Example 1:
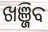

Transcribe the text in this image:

ଖଞ୍ଜିବ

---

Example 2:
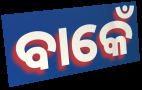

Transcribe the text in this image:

ବାକେଁ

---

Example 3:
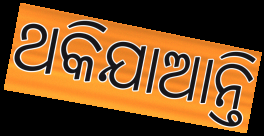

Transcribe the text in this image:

ଥକିଯାଆନ୍ତି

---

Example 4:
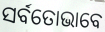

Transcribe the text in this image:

ସର୍ବତୋଭାବେ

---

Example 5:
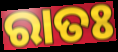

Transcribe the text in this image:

ରାତଃ